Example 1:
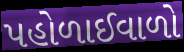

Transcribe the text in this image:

પહોળાઈવાળો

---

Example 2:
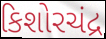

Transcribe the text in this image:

કિશોરચંદ્ર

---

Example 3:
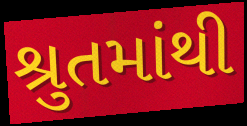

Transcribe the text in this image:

શ્રુતમાંથી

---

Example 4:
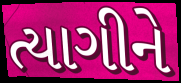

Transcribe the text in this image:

ત્યાગીને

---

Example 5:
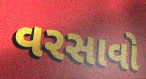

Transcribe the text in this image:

વરસાવો